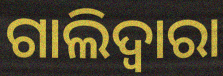
ଗାଲିଦ୍ଵାରା